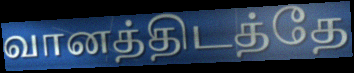
வானத்திடத்தே